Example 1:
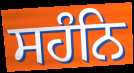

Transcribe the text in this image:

ਸਹੰਨਿ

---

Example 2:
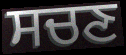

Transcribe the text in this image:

ਸਚਣ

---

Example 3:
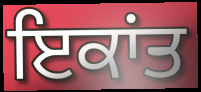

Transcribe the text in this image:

ਇਕਾਂਤ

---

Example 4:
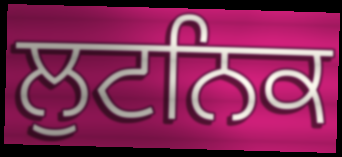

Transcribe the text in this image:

ਲੁਟਨਿਕ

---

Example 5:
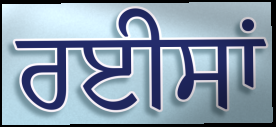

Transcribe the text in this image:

ਰਈਸਾਂ